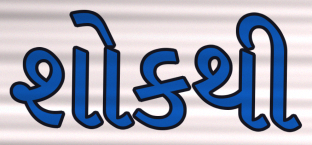
શોકથી